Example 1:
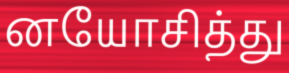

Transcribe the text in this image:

னயோசித்து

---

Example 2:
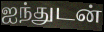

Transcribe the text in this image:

ஐந்துடன்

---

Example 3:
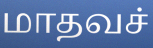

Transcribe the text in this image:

மாதவச்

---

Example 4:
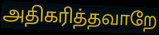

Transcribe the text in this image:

அதிகரித்தவாறே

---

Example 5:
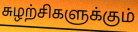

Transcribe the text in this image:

சுழற்சிகளுக்கும்